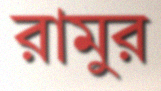
রামুর